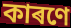
কাৰণে